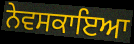
ਨੇਵਸਕਾਇਆ